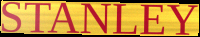
STANLEY